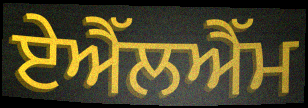
ਏਐੱਲਐੱਮ